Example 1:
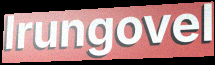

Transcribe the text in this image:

Irungovel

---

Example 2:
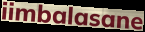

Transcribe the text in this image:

iimbalasane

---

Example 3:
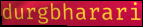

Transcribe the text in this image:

durgbharari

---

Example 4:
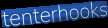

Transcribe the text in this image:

tenterhooks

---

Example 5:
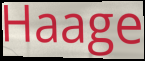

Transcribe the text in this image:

Haage